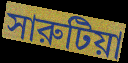
সারুটিয়া